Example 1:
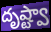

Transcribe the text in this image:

దృష్ట్వా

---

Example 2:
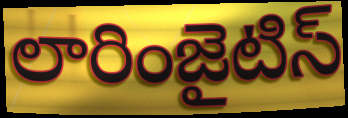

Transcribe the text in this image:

లారింజైటిస్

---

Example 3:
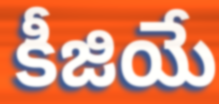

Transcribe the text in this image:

కీజియే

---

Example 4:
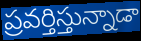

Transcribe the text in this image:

ప్రవర్తిస్తున్నాడా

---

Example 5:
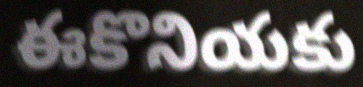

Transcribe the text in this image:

ఈకొనియకు